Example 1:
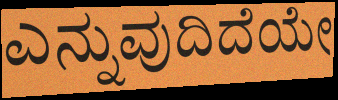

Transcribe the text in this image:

ಎನ್ನುವುದಿದೆಯೇ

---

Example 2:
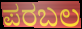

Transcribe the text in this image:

ಪರಬಲ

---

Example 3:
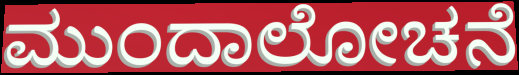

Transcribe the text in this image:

ಮುಂದಾಲೋಚನೆ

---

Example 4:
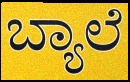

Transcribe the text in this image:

ಬ್ಯಾಲೆ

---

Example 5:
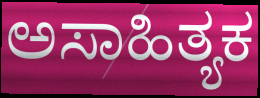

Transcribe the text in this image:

ಅಸಾಹಿತ್ಯಕ